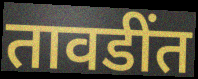
तावडींत